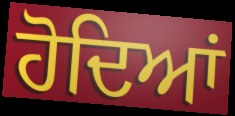
ਹੋਦਿਆਂ